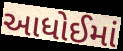
આધોઈમાં